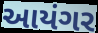
આયંગર